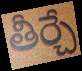
తీర్చే